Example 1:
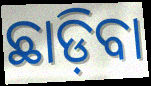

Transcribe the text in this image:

ଛାଡ଼ିବା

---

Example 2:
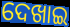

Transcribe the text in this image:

ଦେଖାଇ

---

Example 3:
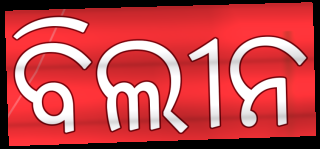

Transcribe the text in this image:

ବିଲୀନ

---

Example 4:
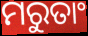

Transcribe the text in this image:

ମରୁତାଂ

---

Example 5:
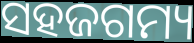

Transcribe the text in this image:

ସହଜଗମ୍ୟ